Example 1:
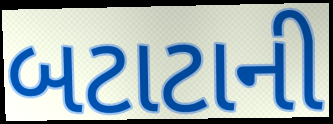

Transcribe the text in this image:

બટાટાની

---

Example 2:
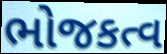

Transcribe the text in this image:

ભોજકત્વ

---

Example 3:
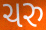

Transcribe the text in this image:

ચરુ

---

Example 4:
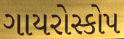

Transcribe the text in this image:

ગાયરોસ્કોપ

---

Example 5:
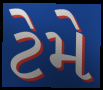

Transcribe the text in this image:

ટેમે